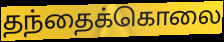
தந்தைக்கொலை